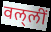
वल्लीं